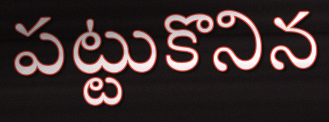
పట్టుకొనిన